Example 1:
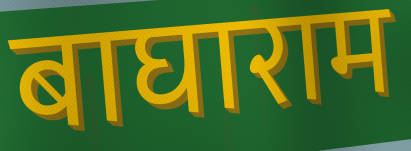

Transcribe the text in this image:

बाघाराम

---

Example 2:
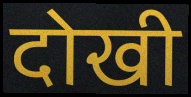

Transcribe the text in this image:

दोखी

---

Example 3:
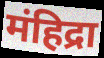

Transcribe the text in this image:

मंहिद्रा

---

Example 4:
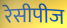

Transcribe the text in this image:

रेसीपीज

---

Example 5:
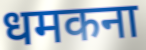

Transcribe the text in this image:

धमकना